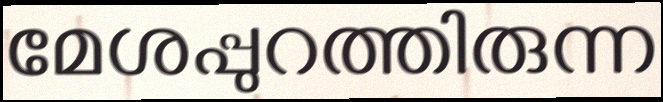
മേശപ്പുറത്തിരുന്ന